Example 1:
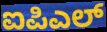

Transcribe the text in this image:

ಐಪಿಎಲ್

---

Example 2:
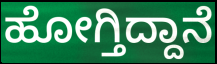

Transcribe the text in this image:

ಹೋಗ್ತಿದ್ದಾನೆ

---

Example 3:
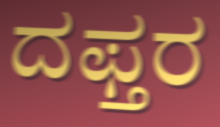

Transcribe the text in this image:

ದಫ್ತರ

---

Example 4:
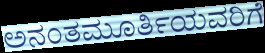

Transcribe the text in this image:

ಅನಂತಮೂರ್ತಿಯವರಿಗೆ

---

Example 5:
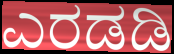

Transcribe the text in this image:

ಎರಡಡಿ